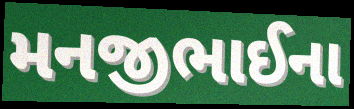
મનજીભાઈના